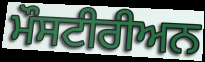
ਮੌਸਟੀਰੀਅਨ